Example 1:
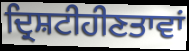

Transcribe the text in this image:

ਦ੍ਰਿਸ਼ਟੀਹੀਣਤਾਵਾਂ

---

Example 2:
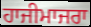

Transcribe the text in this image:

ਹਾਜੀਮਾਜਰਾ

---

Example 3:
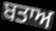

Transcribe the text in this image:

ਬਤਾਅ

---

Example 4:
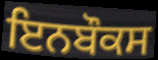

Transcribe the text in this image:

ਇਨਬੌਕਸ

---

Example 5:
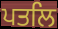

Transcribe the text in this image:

ਪਤਲਿ